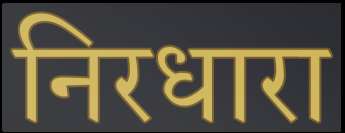
निरधारा